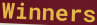
Winners